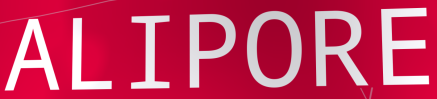
ALIPORE